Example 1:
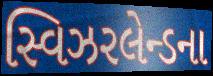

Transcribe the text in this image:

સ્વિઝરલેન્ડના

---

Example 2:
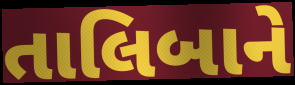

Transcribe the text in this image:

તાલિબાને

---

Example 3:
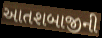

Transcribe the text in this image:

આતશબાજીની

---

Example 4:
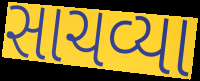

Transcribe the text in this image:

સાચવ્યા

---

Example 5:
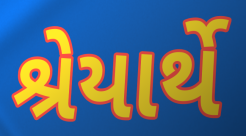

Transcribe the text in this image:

શ્રેયાર્થે